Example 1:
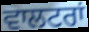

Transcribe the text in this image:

ਵਾਲਟਰਾਂ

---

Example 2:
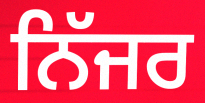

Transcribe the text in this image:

ਨਿੱਜਰ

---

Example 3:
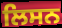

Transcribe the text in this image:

ਲਿਸਨ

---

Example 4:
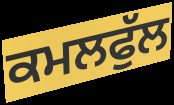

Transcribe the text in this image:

ਕਮਲਫੁੱਲ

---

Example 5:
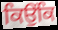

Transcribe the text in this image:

ਕਿਉਂਕਿ